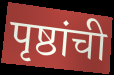
पृष्ठांची